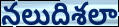
నలుదిశలా